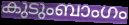
കുടുംബാംഗം